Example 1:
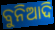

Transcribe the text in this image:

ବୁନିଆଦି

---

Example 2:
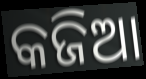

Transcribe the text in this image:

କଜିଆ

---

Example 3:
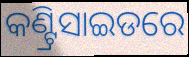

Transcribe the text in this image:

କଣ୍ଟ୍ରିସାଇଡରେ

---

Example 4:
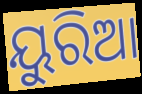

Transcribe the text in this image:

ୟୁରିଆ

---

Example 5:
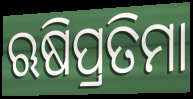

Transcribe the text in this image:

ଋଷିପ୍ରତିମା